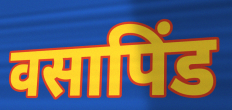
वसापिंड